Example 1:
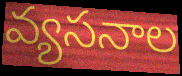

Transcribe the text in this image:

వ్యసనాల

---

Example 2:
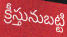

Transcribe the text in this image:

క్రీస్తునుబట్టి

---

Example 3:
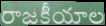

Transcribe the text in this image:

రాజకీయాల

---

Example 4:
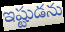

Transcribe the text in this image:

ఇష్టుడను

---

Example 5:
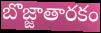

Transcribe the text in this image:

బొజ్జాతారకం